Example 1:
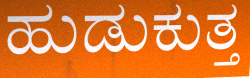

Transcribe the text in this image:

ಹುಡುಕುತ್ತ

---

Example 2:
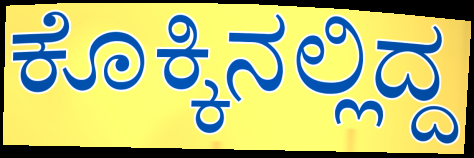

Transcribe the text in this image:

ಕೊಕ್ಕಿನಲ್ಲಿದ್ದ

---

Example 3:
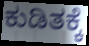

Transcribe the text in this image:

ಕುಡಿತಕ್ಕೆ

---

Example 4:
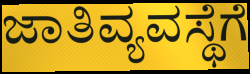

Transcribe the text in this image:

ಜಾತಿವ್ಯವಸ್ಥೆಗೆ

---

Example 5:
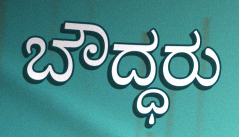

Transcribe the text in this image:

ಬೌದ್ಧರು